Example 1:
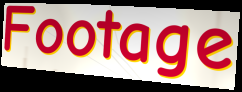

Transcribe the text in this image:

Footage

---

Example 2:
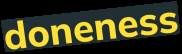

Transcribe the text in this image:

doneness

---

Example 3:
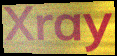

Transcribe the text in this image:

Xray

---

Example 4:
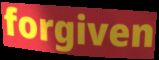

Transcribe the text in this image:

forgiven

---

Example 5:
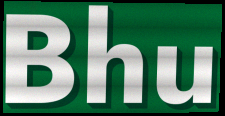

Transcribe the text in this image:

Bhu